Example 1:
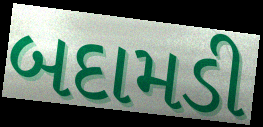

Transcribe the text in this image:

બદામડી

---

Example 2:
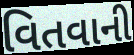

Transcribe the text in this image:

વિતવાની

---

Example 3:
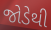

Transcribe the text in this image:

જોડેથી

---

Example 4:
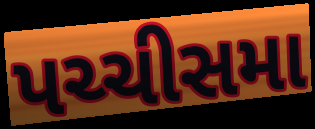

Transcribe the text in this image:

પચ્ચીસમા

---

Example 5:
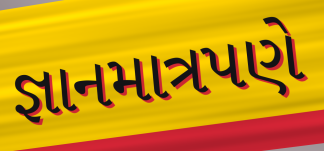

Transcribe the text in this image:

જ્ઞાનમાત્રપણે